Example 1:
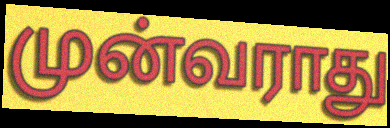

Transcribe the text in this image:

முன்வராது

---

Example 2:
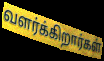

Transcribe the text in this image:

வளர்க்கிறார்கள்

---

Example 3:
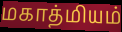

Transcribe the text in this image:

மகாத்மியம்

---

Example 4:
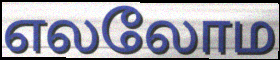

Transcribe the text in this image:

எலலோம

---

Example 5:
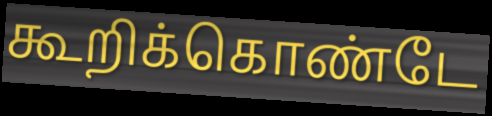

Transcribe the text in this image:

கூறிக்கொண்டே